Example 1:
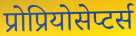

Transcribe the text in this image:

प्रोप्रियोसेप्टर्स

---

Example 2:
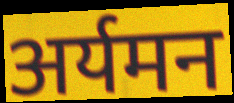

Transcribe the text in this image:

अर्यमन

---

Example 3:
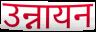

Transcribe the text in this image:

उन्नायन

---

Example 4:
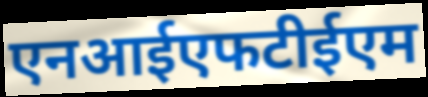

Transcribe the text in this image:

एनआईएफटीईएम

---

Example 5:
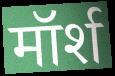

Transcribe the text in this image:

मॉर्श